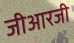
जीआरजी